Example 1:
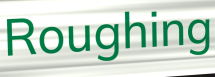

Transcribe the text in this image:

Roughing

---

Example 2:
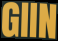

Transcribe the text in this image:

GIIN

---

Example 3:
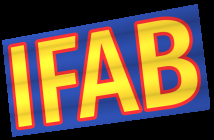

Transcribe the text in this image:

IFAB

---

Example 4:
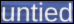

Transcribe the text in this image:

untied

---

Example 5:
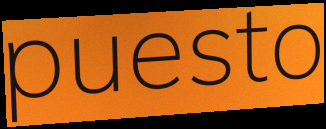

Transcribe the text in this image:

puesto